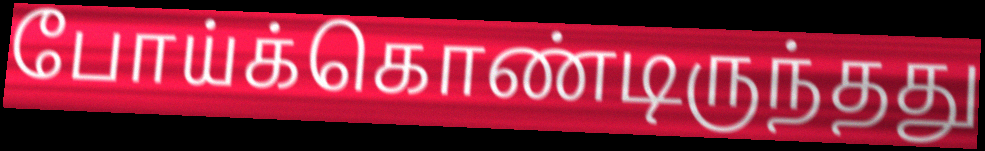
போய்க்கொண்டிருந்தது